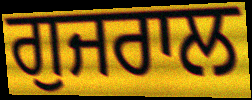
ਗੁਜਰਾਲ